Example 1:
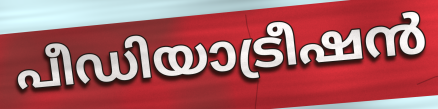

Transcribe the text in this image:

പീഡിയാട്രീഷൻ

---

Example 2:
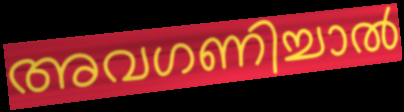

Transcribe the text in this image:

അവഗണിച്ചാൽ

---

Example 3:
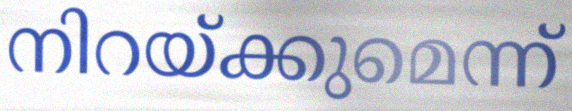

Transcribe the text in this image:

നിറയ്ക്കുമെന്ന്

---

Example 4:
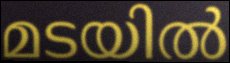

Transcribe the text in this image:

മടയിൽ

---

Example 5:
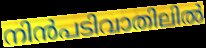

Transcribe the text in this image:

നിൻപടിവാതിലിൽ